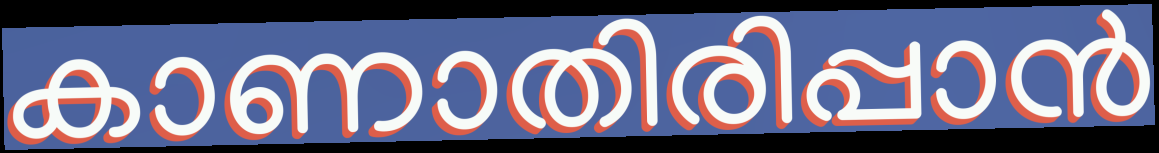
കാണാതിരിപ്പാൻ